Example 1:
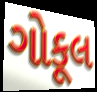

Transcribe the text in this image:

ગોકૂલ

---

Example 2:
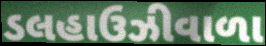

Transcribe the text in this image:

ડલહાઉઝીવાળા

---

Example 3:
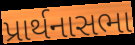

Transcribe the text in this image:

પ્રાર્થનાસભા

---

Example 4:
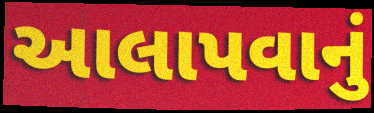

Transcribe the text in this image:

આલાપવાનું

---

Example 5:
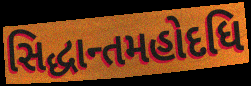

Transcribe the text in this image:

સિદ્ધાન્તમહોદધિ